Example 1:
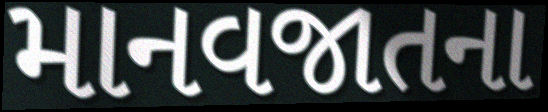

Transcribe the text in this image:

માનવજાતના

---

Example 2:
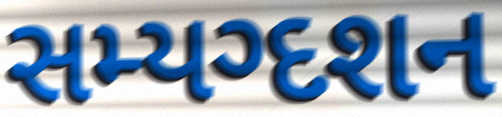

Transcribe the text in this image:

સમ્યગ્દશન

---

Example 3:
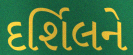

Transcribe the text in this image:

દર્શિલને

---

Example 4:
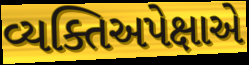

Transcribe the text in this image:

વ્યક્તિઅપેક્ષાએ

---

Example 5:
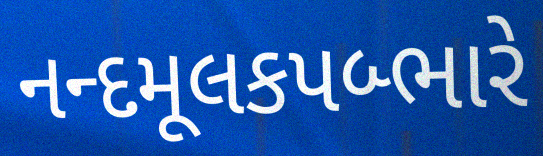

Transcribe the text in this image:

નન્દમૂલકપબ્ભારે